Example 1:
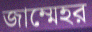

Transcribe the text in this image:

জাম্মেহর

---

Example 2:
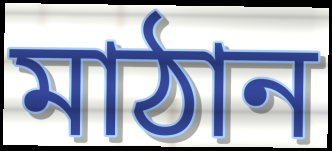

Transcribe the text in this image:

মাঠান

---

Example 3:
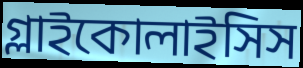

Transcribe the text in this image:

গ্লাইকোলাইসিস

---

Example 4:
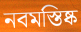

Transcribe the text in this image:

নবমস্তিষ্ক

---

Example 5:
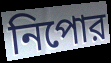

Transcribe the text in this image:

নিপোর